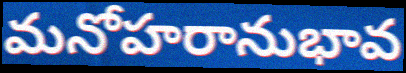
మనోహరానుభావ